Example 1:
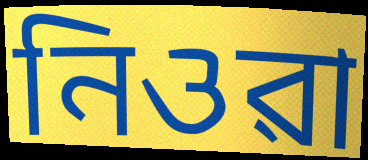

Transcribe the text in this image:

নিওৱা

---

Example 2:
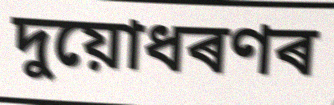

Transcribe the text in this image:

দুয়োধৰণৰ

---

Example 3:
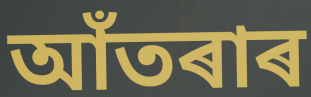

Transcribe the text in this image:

আঁতৰাৰ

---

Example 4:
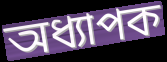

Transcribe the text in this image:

অধ্যাপক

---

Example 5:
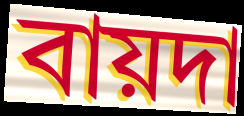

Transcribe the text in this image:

বায়দা